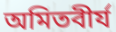
অমিতবীর্য